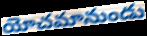
యోచమానుండు